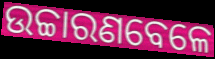
ଉଚ୍ଚାରଣବେଳେ